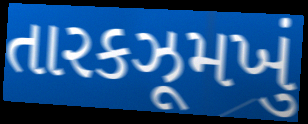
તારકઝૂમખું